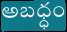
అబధ్ధం